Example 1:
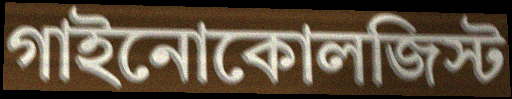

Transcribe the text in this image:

গাইনোকোলজিস্ট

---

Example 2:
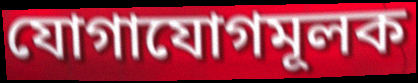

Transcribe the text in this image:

যোগাযোগমূলক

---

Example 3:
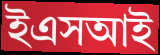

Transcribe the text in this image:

ইএসআই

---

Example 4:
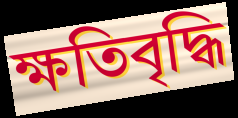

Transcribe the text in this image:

ক্ষতিবৃদ্ধি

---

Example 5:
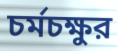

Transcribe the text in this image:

চর্মচক্ষুর